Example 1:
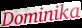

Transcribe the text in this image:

Dominika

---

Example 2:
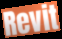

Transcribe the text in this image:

Revit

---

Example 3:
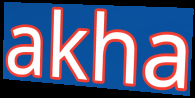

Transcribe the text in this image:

akha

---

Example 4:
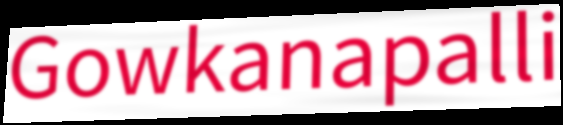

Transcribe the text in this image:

Gowkanapalli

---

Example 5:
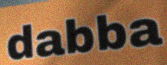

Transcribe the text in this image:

dabba